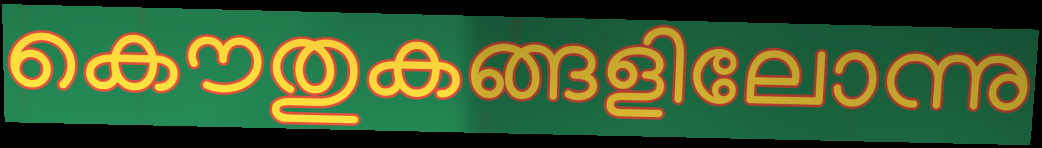
കൌതുകങ്ങളിലോന്നു